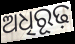
ଅଧିରୂଢ଼